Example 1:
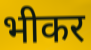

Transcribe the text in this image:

भीकर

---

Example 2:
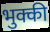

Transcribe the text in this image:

भुक्की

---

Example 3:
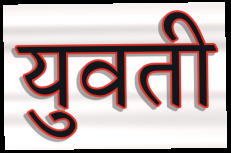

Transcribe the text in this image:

युवती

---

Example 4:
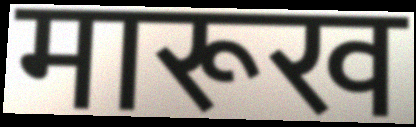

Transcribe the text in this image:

मारूख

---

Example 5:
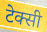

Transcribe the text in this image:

टेक्सी